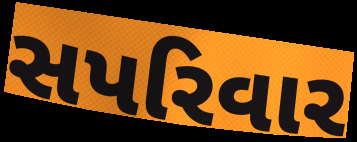
સપરિવાર